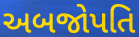
અબજોપતિ